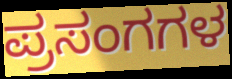
ಪ್ರಸಂಗಗಳ